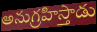
అనుగ్రహిస్తాడు